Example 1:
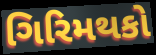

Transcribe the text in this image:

ગિરિમથકો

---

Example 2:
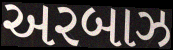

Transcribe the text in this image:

અરબાઝ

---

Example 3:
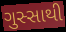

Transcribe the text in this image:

ગુસ્સાથી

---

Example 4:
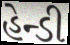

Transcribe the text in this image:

હેન્ડી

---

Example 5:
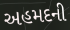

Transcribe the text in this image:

અહમદની